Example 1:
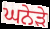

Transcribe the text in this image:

ਘਨੇੜੇ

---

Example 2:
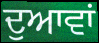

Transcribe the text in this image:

ਦੁਆਵਾਂ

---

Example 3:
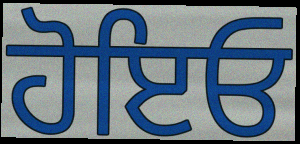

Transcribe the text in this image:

ਹੋਇਓ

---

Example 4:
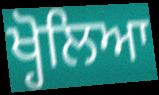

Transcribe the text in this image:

ਖ੍ਹੋਲਿਆ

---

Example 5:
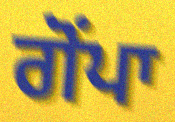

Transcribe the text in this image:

ਗੋਂਪਾ